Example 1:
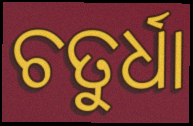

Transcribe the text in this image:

ଚତୁର୍ଧା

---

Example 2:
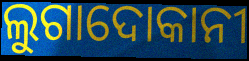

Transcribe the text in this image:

ଲୁଗାଦୋକାନୀ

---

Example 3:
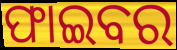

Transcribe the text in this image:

ଫାଇବର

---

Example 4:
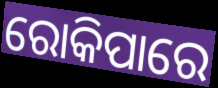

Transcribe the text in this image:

ରୋକିପାରେ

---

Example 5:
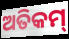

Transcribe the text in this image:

ଅତିକମ୍